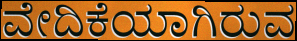
ವೇದಿಕೆಯಾಗಿರುವ